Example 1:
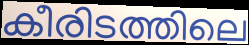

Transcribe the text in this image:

കീരിടത്തിലെ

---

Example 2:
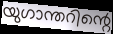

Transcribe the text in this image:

യുഗാന്തറിന്റെ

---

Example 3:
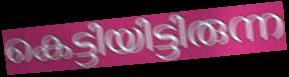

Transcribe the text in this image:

കെട്ടിയിട്ടിരുന്ന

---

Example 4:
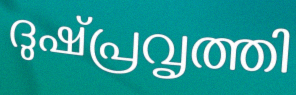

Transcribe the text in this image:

ദുഷ്പ്രവൃത്തി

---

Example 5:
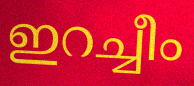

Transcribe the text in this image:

ഇറച്ചീം